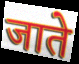
जाते